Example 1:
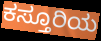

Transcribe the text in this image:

ಕಸ್ತೂರಿಯ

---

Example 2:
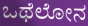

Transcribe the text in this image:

ಒಥೆಲೋನ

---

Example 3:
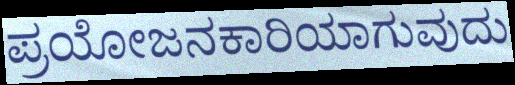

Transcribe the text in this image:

ಪ್ರಯೋಜನಕಾರಿಯಾಗುವುದು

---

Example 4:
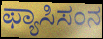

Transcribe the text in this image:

ಫ್ಯಾಸಿಸಂನ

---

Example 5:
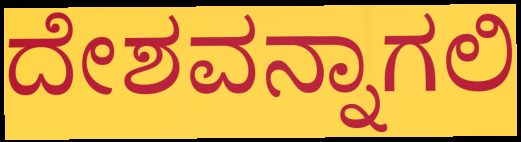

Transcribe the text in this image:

ದೇಶವನ್ನಾಗಲಿ